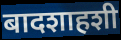
बादशाहशी